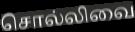
சொல்லிவை